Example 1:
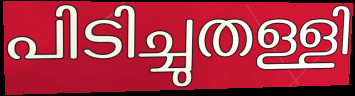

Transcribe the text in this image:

പിടിച്ചുതള്ളി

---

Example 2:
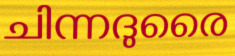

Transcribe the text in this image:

ചിന്നദുരൈ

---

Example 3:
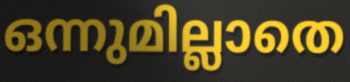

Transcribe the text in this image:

ഒന്നുമില്ലാതെ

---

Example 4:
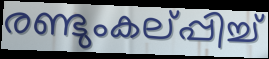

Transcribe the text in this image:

രണ്ടുംകല്പ്പിച്ച്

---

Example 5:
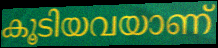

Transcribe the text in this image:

കൂടിയവയാണ്